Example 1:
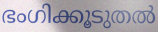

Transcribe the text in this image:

ഭംഗിക്കൂടുതൽ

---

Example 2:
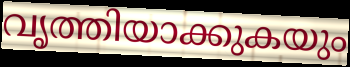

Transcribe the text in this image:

വൃത്തിയാക്കുകയും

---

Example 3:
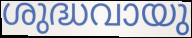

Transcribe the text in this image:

ശുദ്ധവായു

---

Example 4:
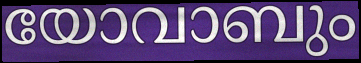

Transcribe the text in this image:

യോവാബും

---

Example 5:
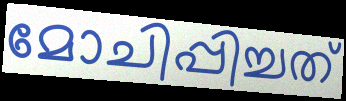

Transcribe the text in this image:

മോചിപ്പിച്ചത്